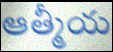
ఆత్మీయ